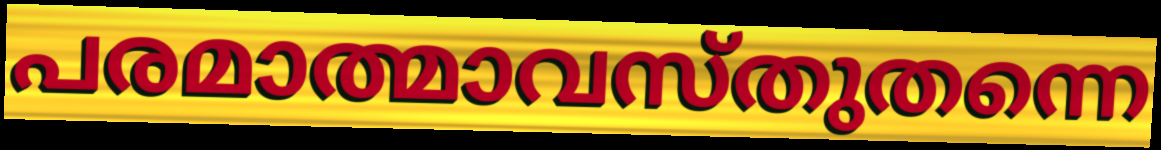
പരമാത്മാവസ്തുതന്നെ